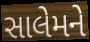
સાલેમને